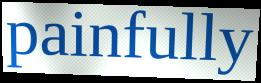
painfully